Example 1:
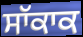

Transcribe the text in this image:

ਸਾੱਕਾਕ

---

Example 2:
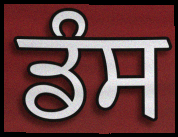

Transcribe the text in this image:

ਡੰਸ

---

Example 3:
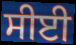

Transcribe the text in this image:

ਸੀਈ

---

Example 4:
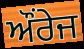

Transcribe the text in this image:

ਔਂਰੇਜ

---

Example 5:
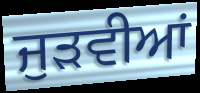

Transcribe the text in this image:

ਜੁੜਵੀਆਂ